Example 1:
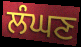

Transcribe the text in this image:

ਲੰਘਣ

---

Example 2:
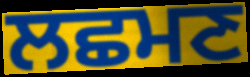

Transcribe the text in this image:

ਲਛਮਣ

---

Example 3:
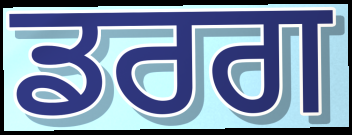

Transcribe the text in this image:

ਡਰਗ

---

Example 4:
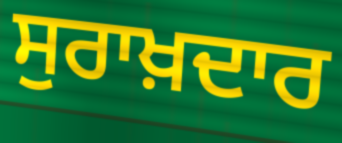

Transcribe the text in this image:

ਸੁਰਾਖ਼ਦਾਰ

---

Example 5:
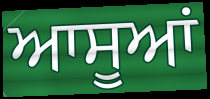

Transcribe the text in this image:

ਆਸੂਆਂ